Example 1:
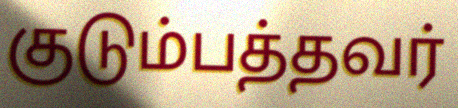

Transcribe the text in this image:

குடும்பத்தவர்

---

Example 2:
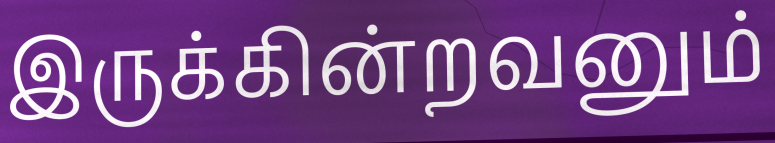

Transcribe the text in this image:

இருக்கின்றவனும்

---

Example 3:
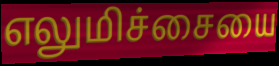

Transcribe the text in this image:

எலுமிச்சையை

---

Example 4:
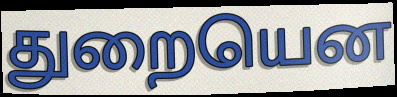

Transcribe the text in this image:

துறையென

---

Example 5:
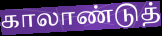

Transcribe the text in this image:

காலாண்டுத்